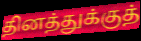
தினத்துக்குத்